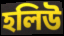
হলিউ